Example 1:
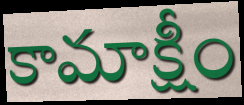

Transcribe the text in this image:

కామాక్షీం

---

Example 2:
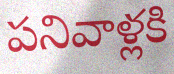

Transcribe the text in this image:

పనివాళ్లకి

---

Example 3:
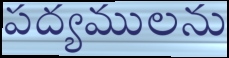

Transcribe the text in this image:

పద్యములను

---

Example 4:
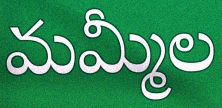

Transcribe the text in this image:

మమ్మీల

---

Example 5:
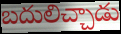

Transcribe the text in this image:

బదులిచ్చాడు